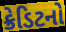
ક્રેડિટનો